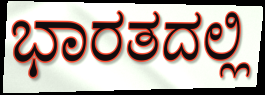
ಭಾರತದಲ್ಲಿ